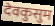
देवकुसुम